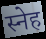
स्नेह